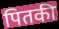
पितकी